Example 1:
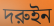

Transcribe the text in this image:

দরুইন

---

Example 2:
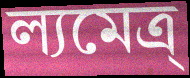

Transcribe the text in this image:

ল্যমেত্র্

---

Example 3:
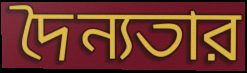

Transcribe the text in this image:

দৈন্যতার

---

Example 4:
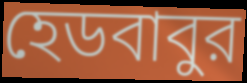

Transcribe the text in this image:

হেডবাবুর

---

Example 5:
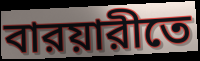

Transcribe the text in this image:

বারয়ারীতে